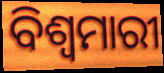
ବିଶ୍ୱମାରୀ